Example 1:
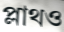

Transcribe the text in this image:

প্লাথও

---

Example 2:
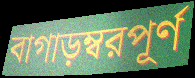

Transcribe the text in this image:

বাগাড়ম্বরপূর্ণ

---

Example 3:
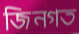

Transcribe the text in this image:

জিনগত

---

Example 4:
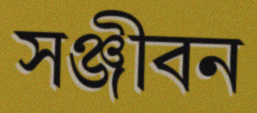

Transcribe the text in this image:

সঞ্জীবন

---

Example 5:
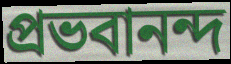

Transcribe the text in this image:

প্রভবানন্দ